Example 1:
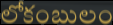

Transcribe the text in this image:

లోకంబులం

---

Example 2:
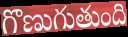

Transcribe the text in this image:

గొణుగుతుంది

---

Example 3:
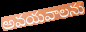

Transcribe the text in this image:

అవయవాలను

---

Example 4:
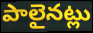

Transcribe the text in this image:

పాలైనట్లు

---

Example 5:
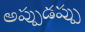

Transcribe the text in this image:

అప్పుడప్పు